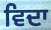
ਵਿਦਾ